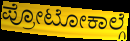
ಪ್ರೋಟೋಕಾಲ್ಗೆ